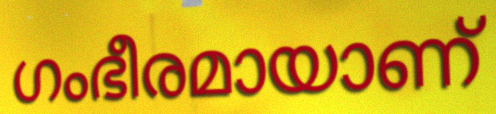
ഗംഭീരമായാണ്